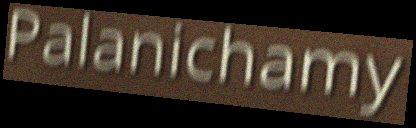
Palanichamy